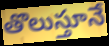
తొలుస్తూనే